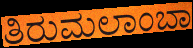
ತಿರುಮಲಾಂಬಾ